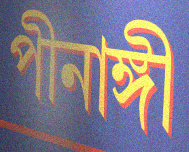
পীনাঙ্গী